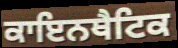
ਕਾਇਨਥੈਟਿਕ